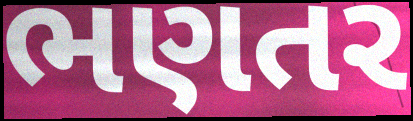
ભણતર